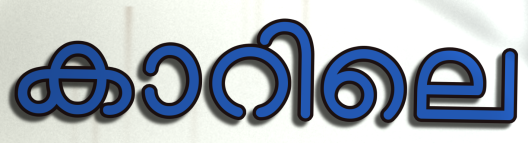
കാറിലെ